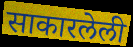
साकारलेली